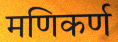
मणिकर्ण